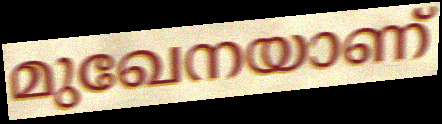
മുഖേനയാണ്